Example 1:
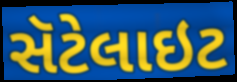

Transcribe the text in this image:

સૅટેલાઇટ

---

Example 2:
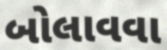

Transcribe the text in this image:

બોલાવવા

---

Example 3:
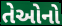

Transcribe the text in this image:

તેઓનો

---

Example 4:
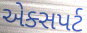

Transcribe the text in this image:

એક્સપર્ટ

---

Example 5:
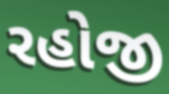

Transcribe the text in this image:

રહોજી